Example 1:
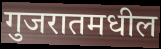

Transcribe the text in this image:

गुजरातमधील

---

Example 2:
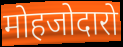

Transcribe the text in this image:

मोहजोदारो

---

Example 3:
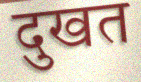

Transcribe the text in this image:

दुखत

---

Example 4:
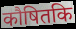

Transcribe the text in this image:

कौषितकि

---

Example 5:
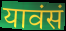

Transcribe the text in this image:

यावंसं